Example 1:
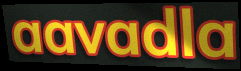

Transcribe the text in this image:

aavadla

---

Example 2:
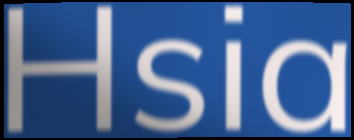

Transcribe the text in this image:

Hsia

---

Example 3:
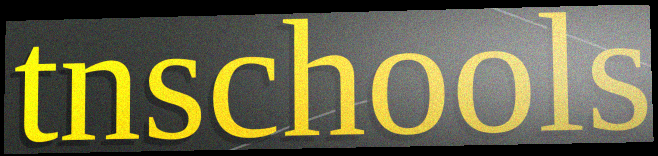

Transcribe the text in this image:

tnschools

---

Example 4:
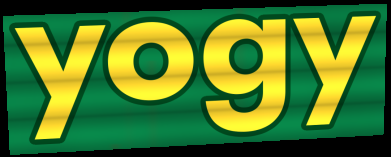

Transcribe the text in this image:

yogy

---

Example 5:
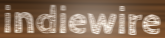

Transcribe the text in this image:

indiewire